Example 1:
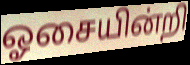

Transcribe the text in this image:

ஓசையின்றி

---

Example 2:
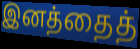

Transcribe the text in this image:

இனத்தைத்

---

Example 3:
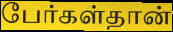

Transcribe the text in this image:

பேர்கள்தான்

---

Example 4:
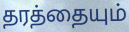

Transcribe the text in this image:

தரத்தையும்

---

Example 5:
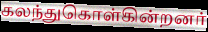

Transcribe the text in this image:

கலந்துகொள்கின்றனர்